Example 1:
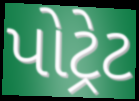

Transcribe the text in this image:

પોટ્રેટ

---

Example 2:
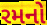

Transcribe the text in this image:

રમનો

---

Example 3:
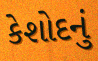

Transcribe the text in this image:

કેશોદનું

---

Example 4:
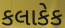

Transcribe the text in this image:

કલાકેક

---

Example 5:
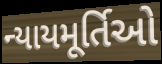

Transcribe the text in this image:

ન્યાયમૂર્તિઓ